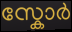
സ്കോർ